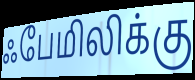
ஃபேமிலிக்கு